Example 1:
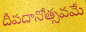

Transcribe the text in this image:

దీపదానోత్సవమే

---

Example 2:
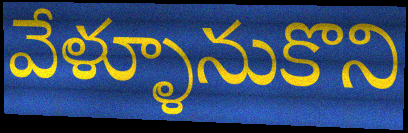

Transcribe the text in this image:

వేళ్ళూనుకొని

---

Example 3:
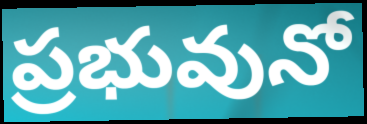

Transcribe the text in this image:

ప్రభువునో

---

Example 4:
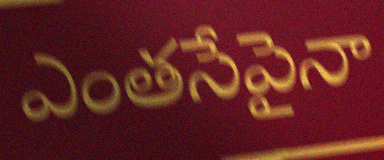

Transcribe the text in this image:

ఎంతసేపైనా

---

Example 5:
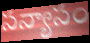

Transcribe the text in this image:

సన్యాసం